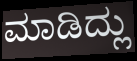
ಮಾಡಿದ್ಲು